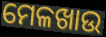
ମେଳଖାଉ